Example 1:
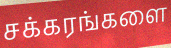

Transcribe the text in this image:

சக்கரங்களை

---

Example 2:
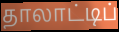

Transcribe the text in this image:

தாலாட்டிப்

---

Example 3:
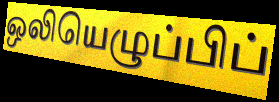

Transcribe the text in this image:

ஒலியெழுப்பிப்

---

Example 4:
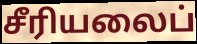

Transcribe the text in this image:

சீரியலைப்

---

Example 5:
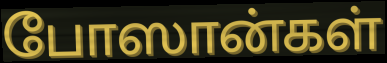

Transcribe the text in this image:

போஸான்கள்